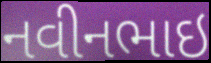
નવીનભાઇ